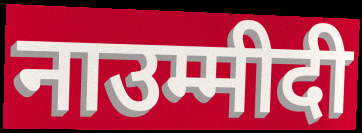
नाउम्मीदी